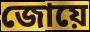
জোয়ে